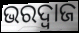
ଭରଦ୍ଵାଜ